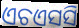
ଏଚଏସସି